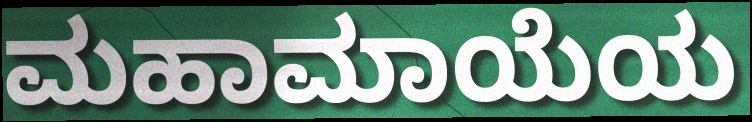
ಮಹಾಮಾಯೆಯ